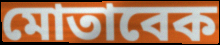
মোতাবেক